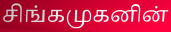
சிங்கமுகனின்